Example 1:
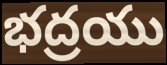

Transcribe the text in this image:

భద్రయు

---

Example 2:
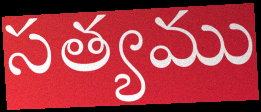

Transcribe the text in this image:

సత్యము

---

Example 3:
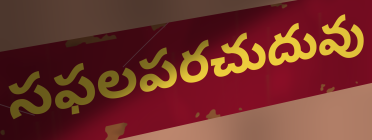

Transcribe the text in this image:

సఫలపరచుదువు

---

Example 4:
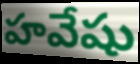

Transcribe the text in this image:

హవేషు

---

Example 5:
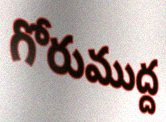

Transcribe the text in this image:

గోరుముద్ద